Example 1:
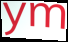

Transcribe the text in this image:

ym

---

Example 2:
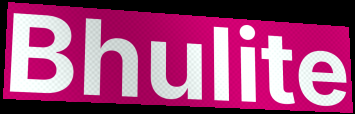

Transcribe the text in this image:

Bhulite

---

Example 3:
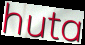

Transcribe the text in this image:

huta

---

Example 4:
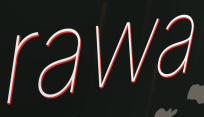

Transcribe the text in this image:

rawa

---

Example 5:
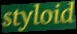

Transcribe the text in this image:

styloid